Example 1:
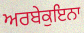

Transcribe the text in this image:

ਅਰਬੇਕੁਇਨਾ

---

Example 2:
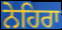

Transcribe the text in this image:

ਨੇਹਿਰਾ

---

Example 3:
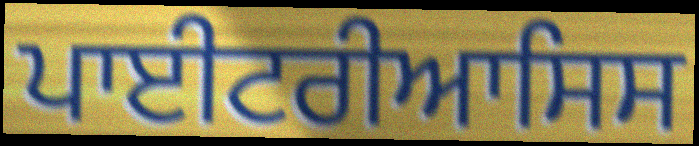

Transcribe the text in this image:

ਪਾਈਟਰੀਆਸਿਸ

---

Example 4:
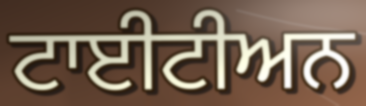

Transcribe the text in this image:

ਟਾਈਟੀਅਨ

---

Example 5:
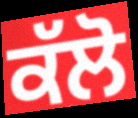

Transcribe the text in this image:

ਕੱਲੋ